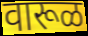
वारूळ